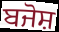
ਬਜੋਸ਼